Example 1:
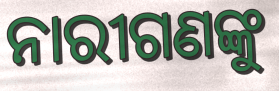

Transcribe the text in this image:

ନାରୀଗଣଙ୍କୁ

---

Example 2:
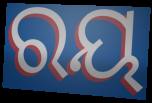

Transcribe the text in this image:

ରୟ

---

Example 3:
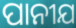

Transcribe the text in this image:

ପାନୀଯ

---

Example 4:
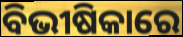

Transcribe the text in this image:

ବିଭୀଷିକାରେ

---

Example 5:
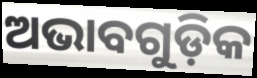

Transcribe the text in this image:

ଅଭାବଗୁଡ଼ିକ